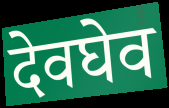
देवघेव